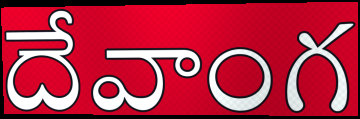
దేవాంగ